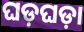
ଘଡ଼ଘଡ଼ା